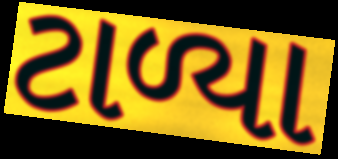
ટાળ્યા